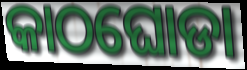
କାଠଘୋଡା